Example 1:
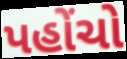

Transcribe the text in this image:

પહોંચો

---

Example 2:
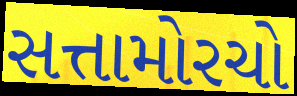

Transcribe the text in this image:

સત્તામોરચો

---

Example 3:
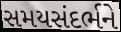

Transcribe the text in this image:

સમયસંદર્ભને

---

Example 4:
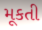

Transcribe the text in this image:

મૂકતી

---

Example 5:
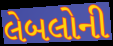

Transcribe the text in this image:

લેબલોની